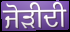
ਜੋੜੀਦੀ